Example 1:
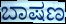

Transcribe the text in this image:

ಬಾಷಣ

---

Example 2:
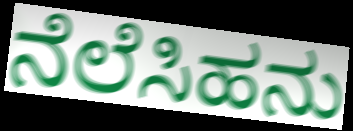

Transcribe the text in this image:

ನೆಲೆಸಿಹನು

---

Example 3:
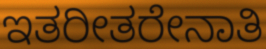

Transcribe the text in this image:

ಇತರೀತರೇನಾತಿ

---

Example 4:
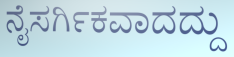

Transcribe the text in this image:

ನೈಸರ್ಗಿಕವಾದದ್ದು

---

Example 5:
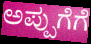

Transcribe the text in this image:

ಅಪ್ಪುಗೆಗೆ